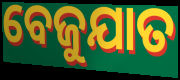
ବେଜୁଯାତ